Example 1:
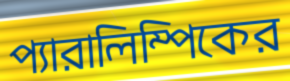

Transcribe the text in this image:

প্যারালিম্পিকের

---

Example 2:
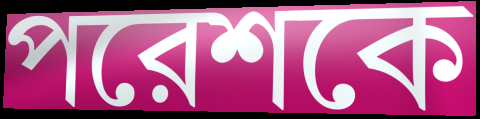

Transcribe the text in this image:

পরেশকে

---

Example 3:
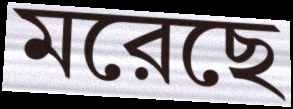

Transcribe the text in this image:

মরেছে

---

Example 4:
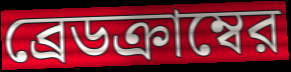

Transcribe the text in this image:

ব্রেডক্রাম্বের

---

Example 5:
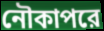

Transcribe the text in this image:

নৌকাপরে